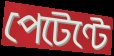
পেটেণ্টে